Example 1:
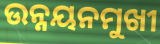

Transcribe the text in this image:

ଉନ୍ନୟନମୁଖୀ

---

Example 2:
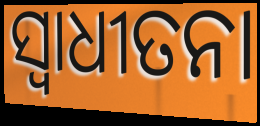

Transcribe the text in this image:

ସ୍ବାଧୀତନା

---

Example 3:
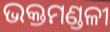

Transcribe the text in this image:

ଭକ୍ତମଣ୍ଡଳୀ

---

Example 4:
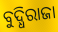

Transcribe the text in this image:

ବୁଦ୍ଧିରାଜା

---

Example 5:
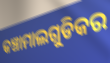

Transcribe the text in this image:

କଞ୍ଚାମାଲଗୁଡିକର